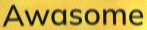
Awasome